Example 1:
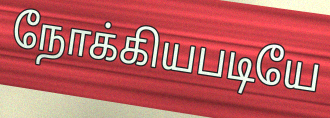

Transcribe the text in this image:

நோக்கியபடியே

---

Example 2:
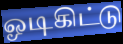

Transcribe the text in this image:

ஓடிகிட்டு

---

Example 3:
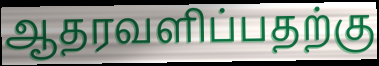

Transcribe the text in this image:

ஆதரவளிப்பதற்கு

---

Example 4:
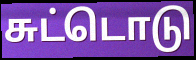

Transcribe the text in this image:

சுட்டொடு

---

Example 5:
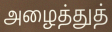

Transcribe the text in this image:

அழைத்துத்